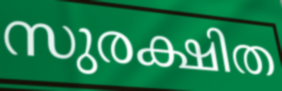
സുരക്ഷിത